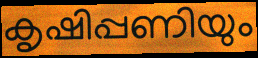
കൃഷിപ്പണിയും